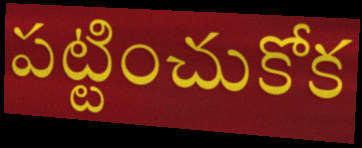
పట్టించుకోక